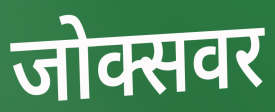
जोक्सवर